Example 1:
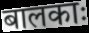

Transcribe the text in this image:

बालकाः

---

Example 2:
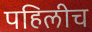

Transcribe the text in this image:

पहिलीच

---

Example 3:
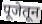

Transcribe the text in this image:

पूजेतून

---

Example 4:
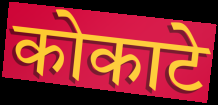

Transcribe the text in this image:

कोकाटे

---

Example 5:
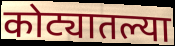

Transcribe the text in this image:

कोट्यातल्या